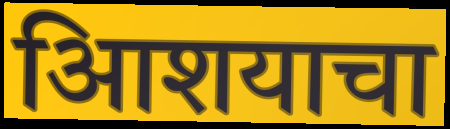
आिशयाचा